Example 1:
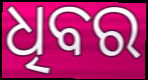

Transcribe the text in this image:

ଧିବର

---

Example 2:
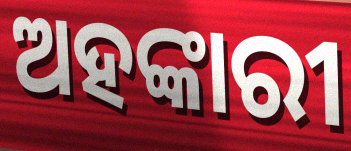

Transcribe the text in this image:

ଅହଙ୍କାରୀ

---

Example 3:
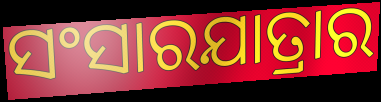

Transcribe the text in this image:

ସଂସାରଯାତ୍ରାର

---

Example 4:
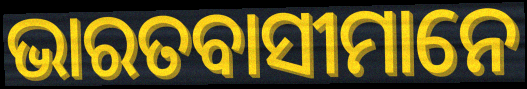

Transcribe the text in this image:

ଭାରତବାସୀମାନେ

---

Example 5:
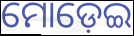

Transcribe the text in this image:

ମୋଡ଼େଇ